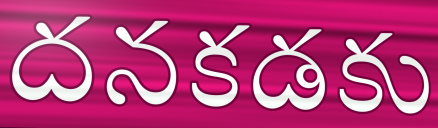
దనకడకు